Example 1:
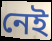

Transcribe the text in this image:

নেই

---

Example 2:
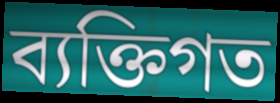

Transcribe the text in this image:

ব্যক্তিগত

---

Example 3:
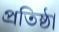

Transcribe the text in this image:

প্ৰতিষ্ঠা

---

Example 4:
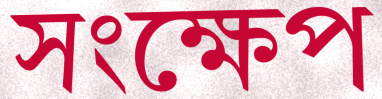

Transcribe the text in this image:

সংক্ষেপ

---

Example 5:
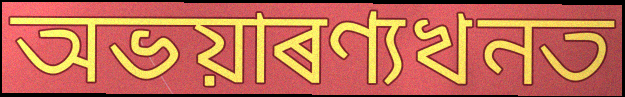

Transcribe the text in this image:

অভয়াৰণ্যখনত